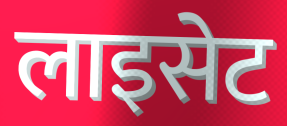
लाइसेट